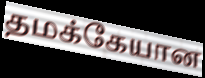
தமக்கேயான